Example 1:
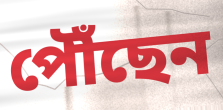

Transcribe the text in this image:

পৌঁছেন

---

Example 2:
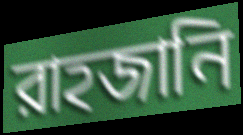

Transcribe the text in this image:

রাহজানি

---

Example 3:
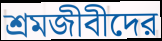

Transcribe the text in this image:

শ্রমজীবীদের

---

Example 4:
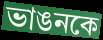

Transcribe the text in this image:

ভাঙনকে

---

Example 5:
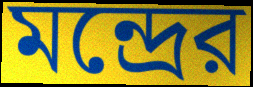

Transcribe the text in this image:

মন্দ্রের